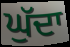
ਘੁੱਦਾ